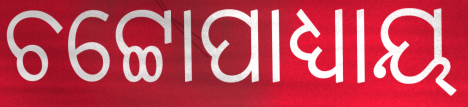
ଚଟ୍ଟୋପାଧ୍ୟାୟ